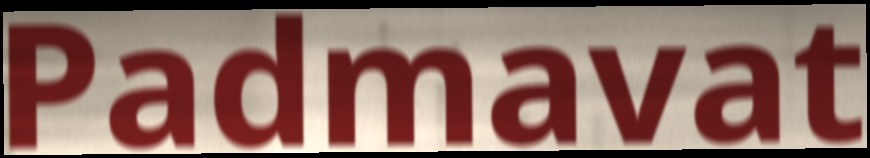
Padmavat